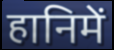
हानिमें